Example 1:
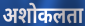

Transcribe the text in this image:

अशोकलता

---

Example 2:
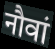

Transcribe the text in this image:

नौवां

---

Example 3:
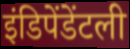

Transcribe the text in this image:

इंडिपेंडेंटली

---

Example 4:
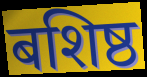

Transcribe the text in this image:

बशिष्ठ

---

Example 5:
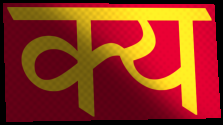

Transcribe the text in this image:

क्य